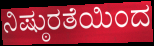
ನಿಷ್ಠುರತೆಯಿಂದ